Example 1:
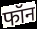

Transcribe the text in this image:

फॉन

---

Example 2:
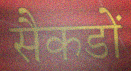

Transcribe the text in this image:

सैकडों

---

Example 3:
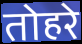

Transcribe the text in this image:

तोहरे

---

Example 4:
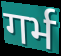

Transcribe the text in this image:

गर्भ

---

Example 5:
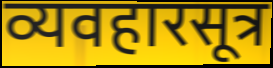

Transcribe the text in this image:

व्यवहारसूत्र